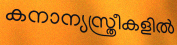
കനാന്യസ്ത്രീകളിൽ